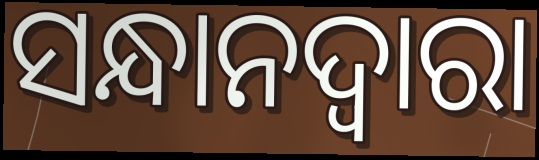
ସନ୍ଧାନଦ୍ୱାରା